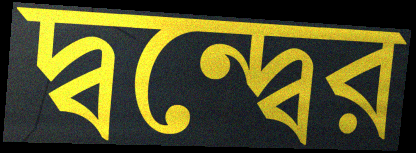
দ্বন্দ্বের